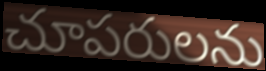
చూపరులను